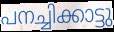
പനച്ചിക്കാട്ടു